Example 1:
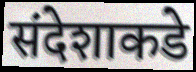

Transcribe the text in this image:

संदेशाकडे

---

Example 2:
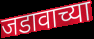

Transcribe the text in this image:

जडावाच्या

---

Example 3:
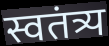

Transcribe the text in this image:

स्वतंत्र्य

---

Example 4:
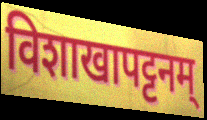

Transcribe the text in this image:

विशाखापट्टनम्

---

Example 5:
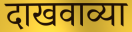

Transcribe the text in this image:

दाखवाव्या